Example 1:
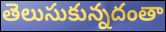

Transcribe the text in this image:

తెలుసుకున్నదంతా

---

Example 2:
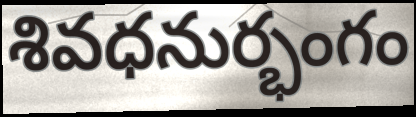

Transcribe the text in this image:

శివధనుర్భంగం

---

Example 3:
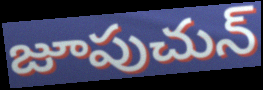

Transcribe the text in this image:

జూపుచున్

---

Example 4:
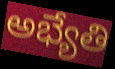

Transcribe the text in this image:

అభ్యేతి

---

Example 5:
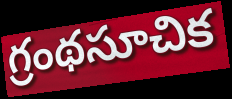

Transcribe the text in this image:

గ్రంథసూచిక